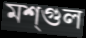
মশ্গুল